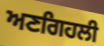
ਅਣਗਿਹਲੀ